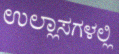
ಉಲ್ಲಾಸಗಳಲ್ಲಿ